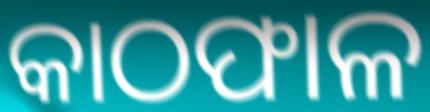
କାଠଫାଳ